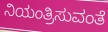
ನಿಯಂತ್ರಿಸುವಂತೆ